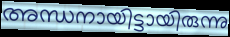
അന്ധനായിട്ടായിരുന്നു